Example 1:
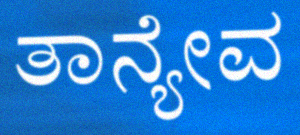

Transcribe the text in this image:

ತಾನ್ಯೇವ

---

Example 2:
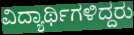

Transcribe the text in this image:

ವಿದ್ಯಾರ್ಥಿಗಳಿದ್ದರು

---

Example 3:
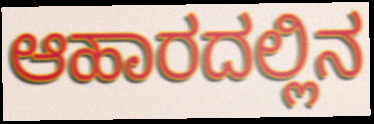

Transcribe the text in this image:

ಆಹಾರದಲ್ಲಿನ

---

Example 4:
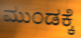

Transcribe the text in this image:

ಮುಂಡಕ್ಕೆ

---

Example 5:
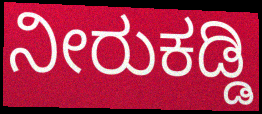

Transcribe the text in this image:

ನೀರುಕಡ್ಡಿ